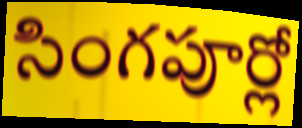
సింగపూర్లో